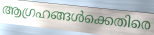
ആഗ്രഹങ്ങൾക്കെതിരെ